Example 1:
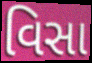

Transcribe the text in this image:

વિસા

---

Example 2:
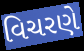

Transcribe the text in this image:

વિચરણે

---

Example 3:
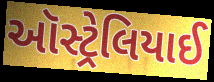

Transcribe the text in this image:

ઑસ્ટ્રેલિયાઈ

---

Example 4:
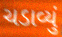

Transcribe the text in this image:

ચડાવ્યું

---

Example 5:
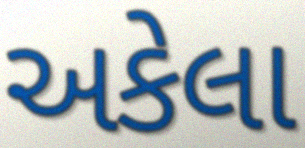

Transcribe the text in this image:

અકેલા